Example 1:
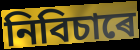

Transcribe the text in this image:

নিবিচাৰে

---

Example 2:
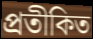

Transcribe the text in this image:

প্ৰতীকিত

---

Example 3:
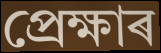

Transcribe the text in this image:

প্ৰেক্ষাৰ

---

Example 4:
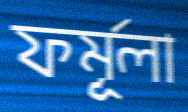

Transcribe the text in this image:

ফৰ্মূলা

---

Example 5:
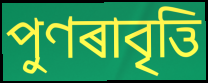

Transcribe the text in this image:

পুণৰাবৃত্তি